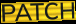
PATCH